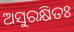
ଅସୁରକ୍ଷିତଃ